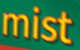
mist